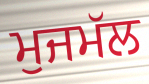
ਮੁਜਮੱਲ